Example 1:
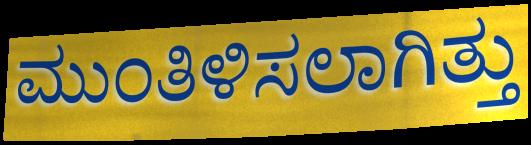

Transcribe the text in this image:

ಮುಂತಿಳಿಸಲಾಗಿತ್ತು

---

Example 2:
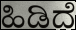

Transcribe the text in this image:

ಹಿಡಿದೆ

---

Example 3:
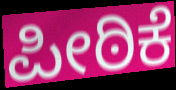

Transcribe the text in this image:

ಪೀಠಿಕೆ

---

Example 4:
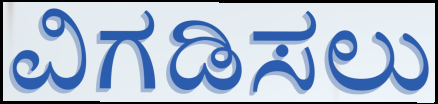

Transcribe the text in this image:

ವಿಗಡಿಸಲು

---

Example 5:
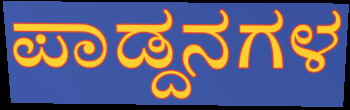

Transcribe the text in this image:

ಪಾಡ್ದನಗಳ